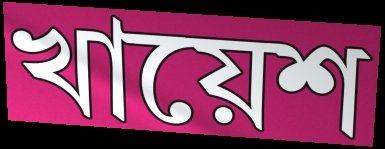
খায়েশ